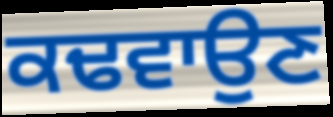
ਕਢਵਾਉਣ